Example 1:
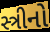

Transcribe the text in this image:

સ્ત્રીનો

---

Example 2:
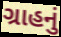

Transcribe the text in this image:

ગ્રાહનું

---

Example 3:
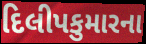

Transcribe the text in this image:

દિલીપકુમારના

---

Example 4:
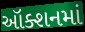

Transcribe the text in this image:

ઑક્શનમાં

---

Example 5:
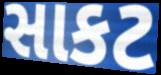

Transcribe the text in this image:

સાકટ